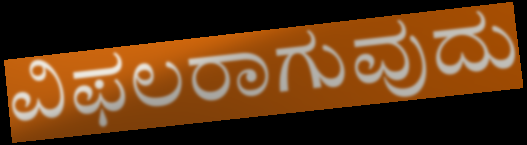
ವಿಫಲರಾಗುವುದು